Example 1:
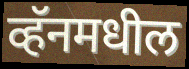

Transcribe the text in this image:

व्हॅनमधील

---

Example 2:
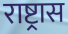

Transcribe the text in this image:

राष्ट्रास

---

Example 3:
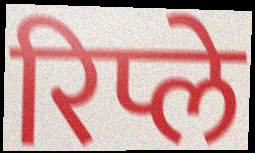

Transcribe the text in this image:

रिप्ले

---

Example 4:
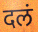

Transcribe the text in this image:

दलं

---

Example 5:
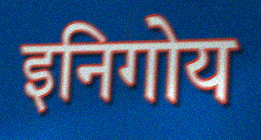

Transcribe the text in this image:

इनिगोय